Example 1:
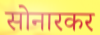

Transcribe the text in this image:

सोनारकर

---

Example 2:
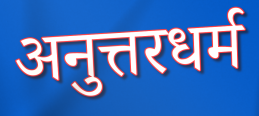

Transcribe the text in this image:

अनुत्तरधर्म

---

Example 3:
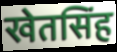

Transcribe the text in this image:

खेतसिंह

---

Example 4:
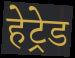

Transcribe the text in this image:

हेट्रेड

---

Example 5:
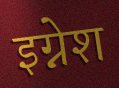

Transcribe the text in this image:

इग्नेश